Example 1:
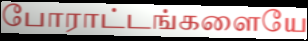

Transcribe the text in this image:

போராட்டங்களையே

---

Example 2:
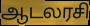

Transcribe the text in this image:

ஆடலரசி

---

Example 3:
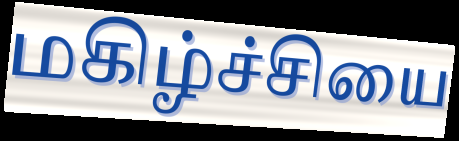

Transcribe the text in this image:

மகிழ்ச்சியை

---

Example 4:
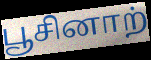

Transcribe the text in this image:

பூசினாற்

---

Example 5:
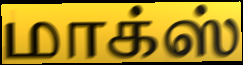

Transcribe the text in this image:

மாக்ஸ்